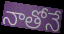
నాతోనే